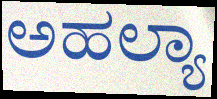
ಅಹಲ್ಯಾ